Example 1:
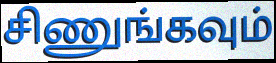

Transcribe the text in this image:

சிணுங்கவும்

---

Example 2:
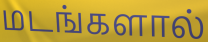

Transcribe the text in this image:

மடங்களால்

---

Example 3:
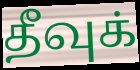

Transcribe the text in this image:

தீவுக்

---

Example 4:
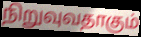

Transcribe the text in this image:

நிறுவுவதாகும்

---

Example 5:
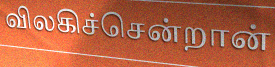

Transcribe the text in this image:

விலகிச்சென்றான்